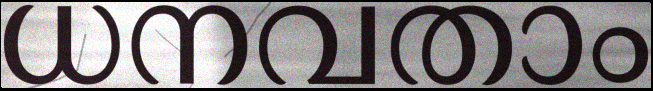
ധനവതാം